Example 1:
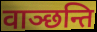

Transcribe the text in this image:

वाञ्छन्ति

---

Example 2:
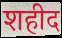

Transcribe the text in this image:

शहीद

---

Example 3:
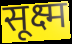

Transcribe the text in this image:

सूक्ष्म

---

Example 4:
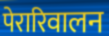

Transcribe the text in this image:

पेरारिवालन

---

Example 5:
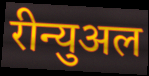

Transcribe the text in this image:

रीन्युअल